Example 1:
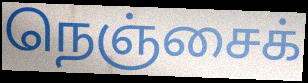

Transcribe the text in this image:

நெஞ்சைக்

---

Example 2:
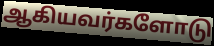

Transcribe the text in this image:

ஆகியவர்களோடு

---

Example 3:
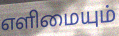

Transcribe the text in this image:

எளிமையும்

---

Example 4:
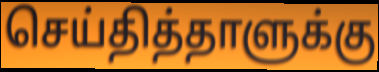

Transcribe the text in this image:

செய்தித்தாளுக்கு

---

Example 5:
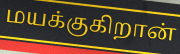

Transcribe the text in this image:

மயக்குகிறான்